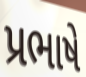
પ્રભાષે